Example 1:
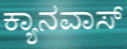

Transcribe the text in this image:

ಕ್ಯಾನವಾಸ್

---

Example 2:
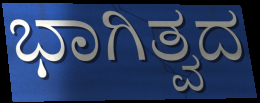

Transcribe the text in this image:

ಭಾಗಿತ್ವದ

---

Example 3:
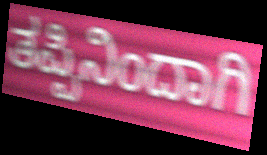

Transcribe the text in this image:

ತಪ್ಪಿನಿಂದಾಗಿ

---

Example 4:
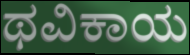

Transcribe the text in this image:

ಥವಿಕಾಯ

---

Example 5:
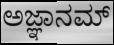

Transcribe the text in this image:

ಅಜ್ಞಾನಮ್